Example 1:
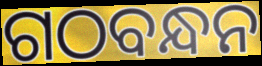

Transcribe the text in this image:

ଗଠବନ୍ଧନ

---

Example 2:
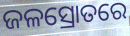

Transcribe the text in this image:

ଜଳସ୍ରୋତରେ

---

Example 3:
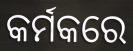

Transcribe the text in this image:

କର୍ମକରେ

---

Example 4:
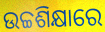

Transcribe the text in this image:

ଉଚ୍ଚଶିକ୍ଷାରେ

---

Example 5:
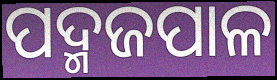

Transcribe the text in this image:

ପଦ୍ମଜପାଳ